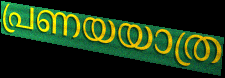
പ്രണയയാത്ര